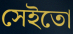
সেইতো